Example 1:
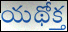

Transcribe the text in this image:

యథోక్త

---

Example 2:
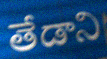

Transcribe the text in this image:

తేడాని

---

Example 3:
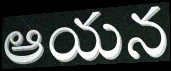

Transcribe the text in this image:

ఆయన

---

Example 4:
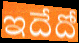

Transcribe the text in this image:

ఇదేదో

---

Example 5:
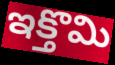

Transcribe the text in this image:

ఇక్తొమి